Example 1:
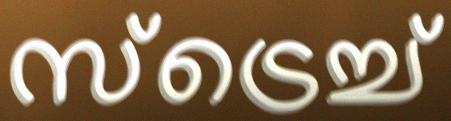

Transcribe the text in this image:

സ്ട്രെച്ച്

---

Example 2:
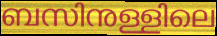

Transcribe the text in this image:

ബസിനുള്ളിലെ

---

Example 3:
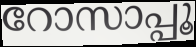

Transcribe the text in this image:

റോസാപ്പൂ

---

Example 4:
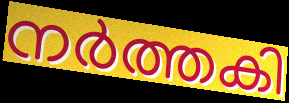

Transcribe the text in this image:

നർത്തകി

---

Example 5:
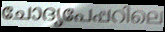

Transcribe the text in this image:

ചോദ്യപേപ്പറിലെ